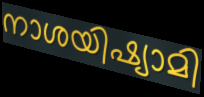
നാശയിഷ്യാമി